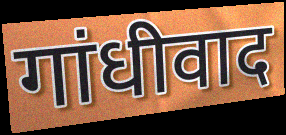
गांधीवाद